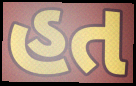
હત